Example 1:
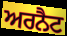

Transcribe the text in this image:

ਅਰਨੈਟ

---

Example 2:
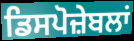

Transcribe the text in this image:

ਡਿਸਪੋਜ਼ੇਬਲਾਂ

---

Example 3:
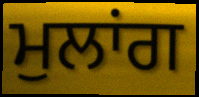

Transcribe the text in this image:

ਮੁਲਾਂਗ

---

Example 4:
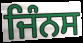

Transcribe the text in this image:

ਜਿੰਨਸ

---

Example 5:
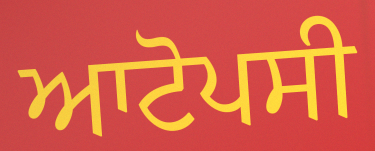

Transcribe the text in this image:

ਆਟੋਪਸੀ